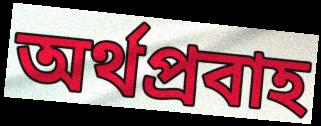
অর্থপ্রবাহ